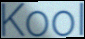
Kool